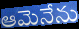
ఆమెనేను